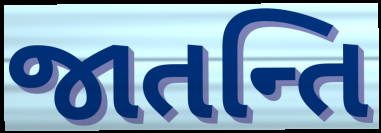
જાતન્તિ